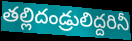
తల్లిదండ్రులిద్దరినీ